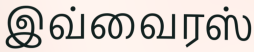
இவ்வைரஸ்